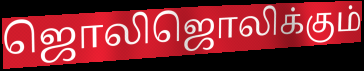
ஜொலிஜொலிக்கும்